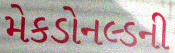
મેકડોનલ્ડની